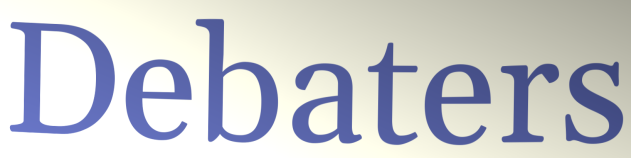
Debaters